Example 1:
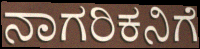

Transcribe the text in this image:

ನಾಗರಿಕನಿಗೆ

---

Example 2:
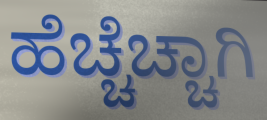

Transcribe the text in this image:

ಹೆಚ್ಚೆಚ್ಚಾಗಿ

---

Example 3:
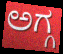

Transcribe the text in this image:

ಅಗ್ಗ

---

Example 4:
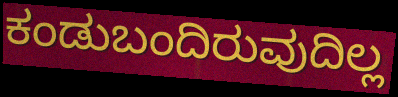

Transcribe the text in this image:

ಕಂಡುಬಂದಿರುವುದಿಲ್ಲ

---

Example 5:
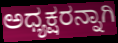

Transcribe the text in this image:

ಅಧ್ಯಕ್ಷರನ್ನಾಗಿ